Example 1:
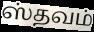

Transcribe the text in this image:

ஸ்தவம்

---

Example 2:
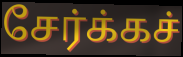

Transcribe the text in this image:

சேர்க்கச்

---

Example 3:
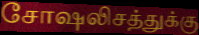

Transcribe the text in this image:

சோஷலிசத்துக்கு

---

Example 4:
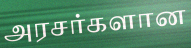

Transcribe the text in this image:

அரசர்களான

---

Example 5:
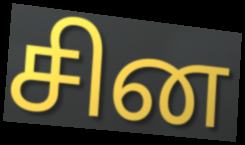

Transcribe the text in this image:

சின